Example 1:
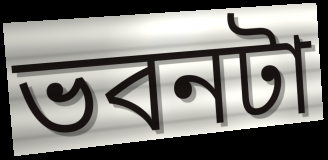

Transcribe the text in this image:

ভবনটা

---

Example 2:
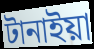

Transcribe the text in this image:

টানাইয়া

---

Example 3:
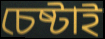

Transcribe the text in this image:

চেষ্টাই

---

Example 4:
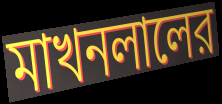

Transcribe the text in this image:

মাখনলালের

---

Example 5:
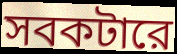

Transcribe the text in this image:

সবকটারে